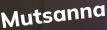
Mutsanna